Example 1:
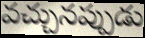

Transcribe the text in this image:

వచ్చునప్పుడు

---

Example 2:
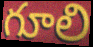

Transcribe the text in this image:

గూలి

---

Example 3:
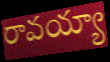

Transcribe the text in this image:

రావయ్యా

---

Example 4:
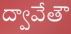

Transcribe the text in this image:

ద్వావేతౌ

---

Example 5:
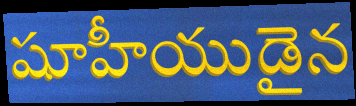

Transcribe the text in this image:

షూహీయుడైన